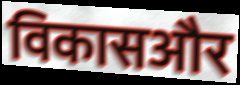
विकासऔर